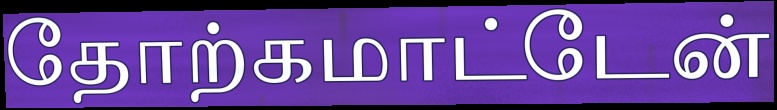
தோற்கமாட்டேன்